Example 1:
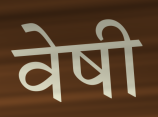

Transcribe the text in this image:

वेषी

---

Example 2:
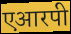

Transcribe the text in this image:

एआरपी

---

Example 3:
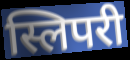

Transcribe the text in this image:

स्लिपरी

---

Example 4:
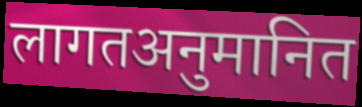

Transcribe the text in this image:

लागतअनुमानित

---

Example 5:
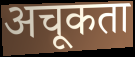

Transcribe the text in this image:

अचूकता